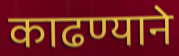
काढण्याने